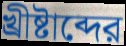
খ্রীষ্টাব্দের